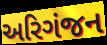
અરિગંજન